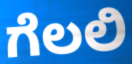
ಗೆಲಲಿ